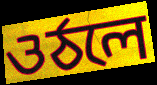
ওঠলে